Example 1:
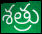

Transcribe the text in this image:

శత్రు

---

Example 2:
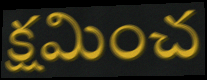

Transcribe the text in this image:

క్షమించ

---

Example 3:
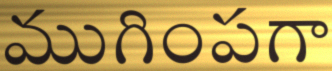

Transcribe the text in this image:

ముగింపగా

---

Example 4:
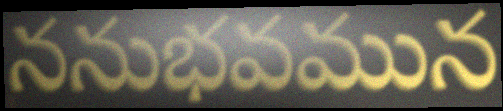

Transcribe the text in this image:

ననుభవమున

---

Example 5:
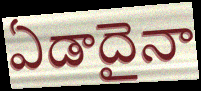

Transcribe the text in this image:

ఏడాదైనా